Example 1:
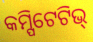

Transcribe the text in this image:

କମ୍ପିଟେଟିଭ୍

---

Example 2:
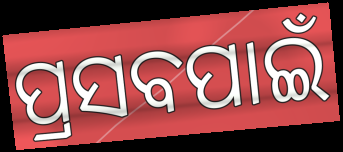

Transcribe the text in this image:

ପ୍ରସବପାଇଁ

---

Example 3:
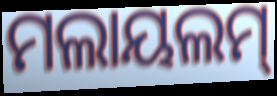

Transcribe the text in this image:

ମଲାୟଲମ୍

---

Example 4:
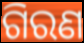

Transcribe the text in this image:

ଗିରଣ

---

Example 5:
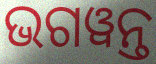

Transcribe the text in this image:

ଭଗୱନ୍ତ